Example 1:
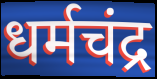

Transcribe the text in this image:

धर्मचंद्र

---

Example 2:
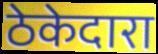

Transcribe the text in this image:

ठेकेदारा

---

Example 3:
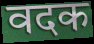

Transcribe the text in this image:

वदक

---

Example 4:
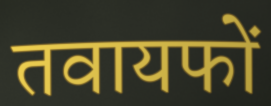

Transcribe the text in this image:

तवायफों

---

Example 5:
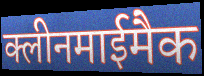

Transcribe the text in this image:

क्लीनमाईमैक